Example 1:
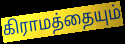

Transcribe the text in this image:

கிராமத்தையும்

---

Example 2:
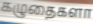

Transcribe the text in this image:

கழுதைகளா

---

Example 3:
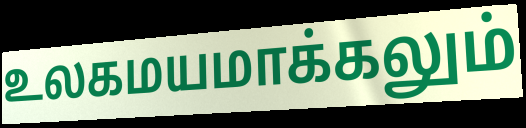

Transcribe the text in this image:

உலகமயமாக்கலும்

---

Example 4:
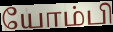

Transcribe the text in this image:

யோம்பி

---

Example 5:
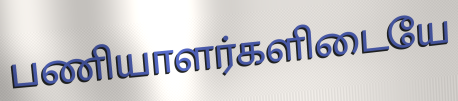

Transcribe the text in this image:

பணியாளர்களிடையே